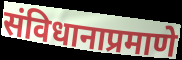
संविधानाप्रमाणे